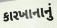
કારખાનાનું